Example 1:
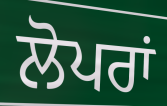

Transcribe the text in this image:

ਲੋਪਰਾਂ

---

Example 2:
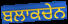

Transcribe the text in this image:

ਬਲਾਕਚੇਨ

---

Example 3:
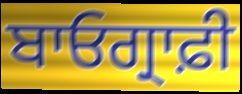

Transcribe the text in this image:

ਬਾਓਗ੍ਰਾਫ਼ੀ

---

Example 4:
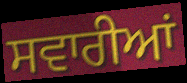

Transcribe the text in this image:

ਸਵਾਰੀਆਂ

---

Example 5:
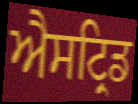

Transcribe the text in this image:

ਐਸਟ੍ਰਿਡ